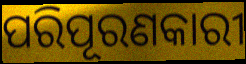
ପରିପୂରଣକାରୀ